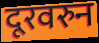
दूरवरुन